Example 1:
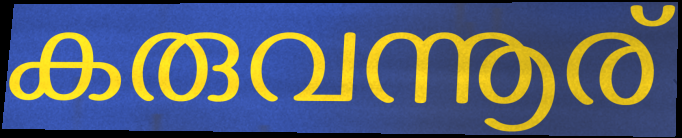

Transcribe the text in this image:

കരുവന്നൂര്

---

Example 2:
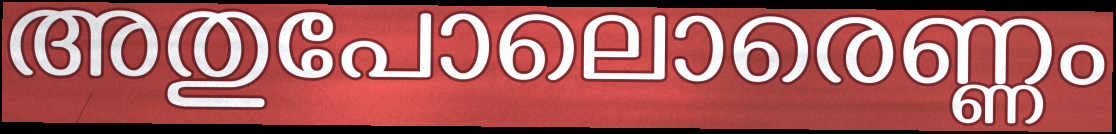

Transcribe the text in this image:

അതുപോലൊരെണ്ണം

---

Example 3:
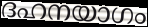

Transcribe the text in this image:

ദഹനയാഗം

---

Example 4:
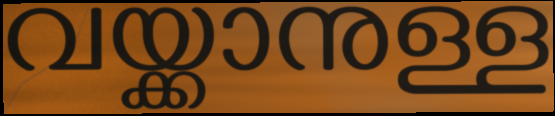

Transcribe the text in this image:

വയ്ക്കാനുള്ള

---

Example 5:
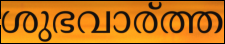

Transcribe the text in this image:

ശുഭവാര്ത്ത